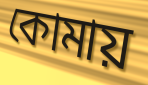
কোমায়